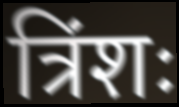
त्रिंशः